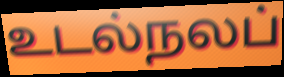
உடல்நலப்